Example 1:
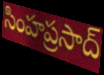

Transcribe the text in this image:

సింహప్రసాద్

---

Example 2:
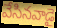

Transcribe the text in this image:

వేసినవాడై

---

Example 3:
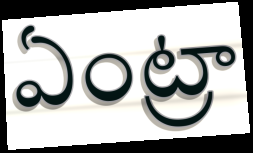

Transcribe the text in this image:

ఏంట్రా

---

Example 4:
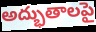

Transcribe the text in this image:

అద్భుతాలపై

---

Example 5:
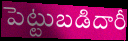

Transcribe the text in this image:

పెట్టుబడిదారీ